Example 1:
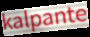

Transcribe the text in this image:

kalpante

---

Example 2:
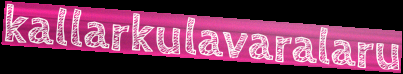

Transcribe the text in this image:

kallarkulavaralaru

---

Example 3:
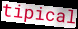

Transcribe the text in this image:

tipical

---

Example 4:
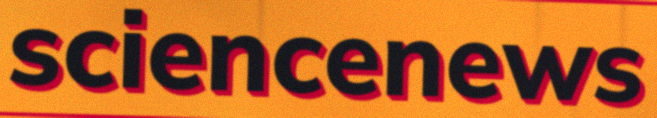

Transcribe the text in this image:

sciencenews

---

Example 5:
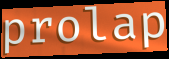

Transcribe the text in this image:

prolap